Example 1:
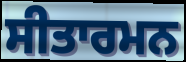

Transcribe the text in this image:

ਸੀਤਾਰਮਨ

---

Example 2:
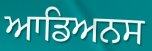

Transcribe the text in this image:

ਆਡਿਅਨਸ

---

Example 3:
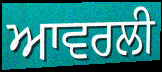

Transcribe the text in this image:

ਆਵਰਲੀ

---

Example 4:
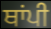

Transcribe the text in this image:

ਥਾਂਪੀ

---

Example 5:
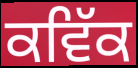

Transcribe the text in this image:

ਕਵਿੱਕ